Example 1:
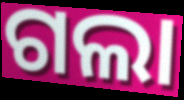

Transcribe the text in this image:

ଗଲା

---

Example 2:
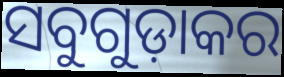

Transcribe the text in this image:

ସବୁଗୁଡ଼ାକର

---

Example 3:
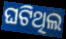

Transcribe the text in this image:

ଘଟିଥିଲ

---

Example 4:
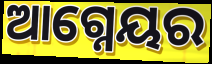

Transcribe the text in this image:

ଆଗ୍ନେୟର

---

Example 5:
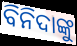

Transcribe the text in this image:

ବିନିଦାଙ୍କୁ